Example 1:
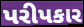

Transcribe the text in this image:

પરીપકાર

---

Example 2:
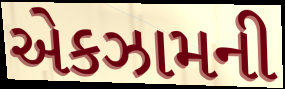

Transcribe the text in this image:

એકઝામની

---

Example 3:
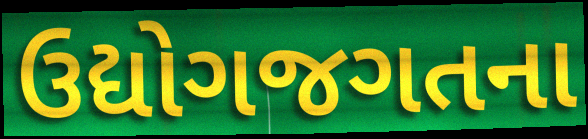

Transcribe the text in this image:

ઉદ્યોગજગતના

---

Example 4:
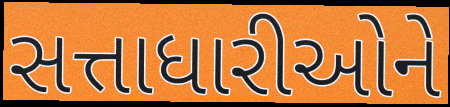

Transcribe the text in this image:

સત્તાધારીઓને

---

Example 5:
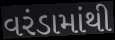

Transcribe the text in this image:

વરંડામાંથી